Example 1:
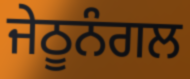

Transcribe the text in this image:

ਜੇਠੂਨੰਗਲ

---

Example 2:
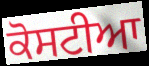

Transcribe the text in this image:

ਕੋਸਟੀਆ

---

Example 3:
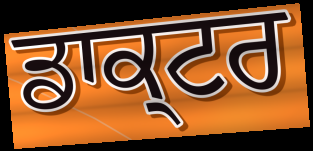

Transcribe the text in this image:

ਡਾਕ੍ਟਰ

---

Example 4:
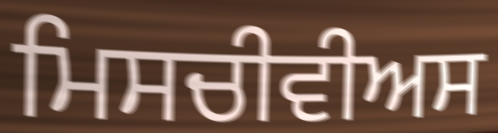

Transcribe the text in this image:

ਮਿਸਚੀਵੀਅਸ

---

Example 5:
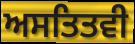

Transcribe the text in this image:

ਅਸਤਿਤਵੀ